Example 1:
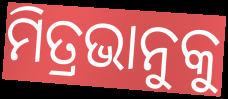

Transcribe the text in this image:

ମିତ୍ରଭାନୁକୁ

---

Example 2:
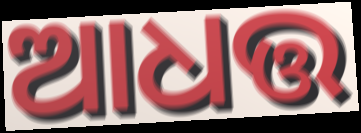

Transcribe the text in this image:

ଆଧତ୍ତ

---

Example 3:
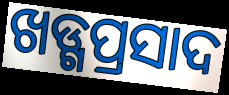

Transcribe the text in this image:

ଖଡ୍ଗପ୍ରସାଦ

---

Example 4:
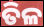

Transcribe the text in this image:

ତିଳ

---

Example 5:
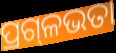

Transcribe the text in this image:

ପ୍ରଗ୍‍ଳଭତା